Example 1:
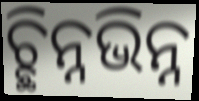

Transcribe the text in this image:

ଚ୍ଛିନ୍ନଭିନ୍ନ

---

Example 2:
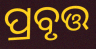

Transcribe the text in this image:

ପ୍ରବୃତ୍ତ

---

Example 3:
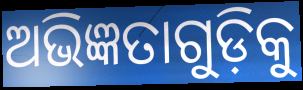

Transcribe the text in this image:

ଅଭିଜ୍ଞତାଗୁଡ଼ିକୁ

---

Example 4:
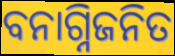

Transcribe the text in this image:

ବନାଗ୍ନିଜନିତ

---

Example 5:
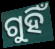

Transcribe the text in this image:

ଗୁହିଁ